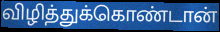
விழித்துக்கொண்டான்